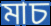
মাচ